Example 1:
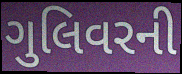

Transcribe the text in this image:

ગુલિવરની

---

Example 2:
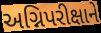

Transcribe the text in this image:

અગ્નિપરીક્ષાને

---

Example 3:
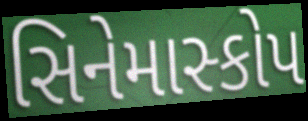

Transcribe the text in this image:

સિનેમાસ્કોપ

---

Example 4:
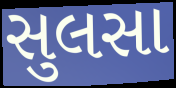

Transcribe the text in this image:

સુલસા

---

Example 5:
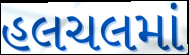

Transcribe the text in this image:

હલચલમાં